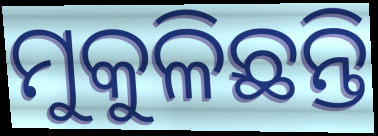
ମୁକୁଳିଛନ୍ତି